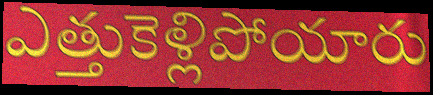
ఎత్తుకెళ్లిపోయారు